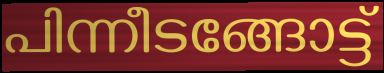
പിന്നീടങ്ങോട്ട്